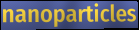
nanoparticles